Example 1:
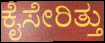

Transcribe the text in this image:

ಕೈಸೇರಿತ್ತು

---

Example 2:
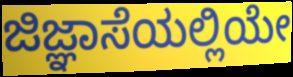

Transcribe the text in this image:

ಜಿಜ್ಞಾಸೆಯಲ್ಲಿಯೇ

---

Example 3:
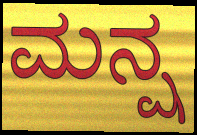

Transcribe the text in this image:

ಮನ್ಷ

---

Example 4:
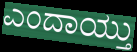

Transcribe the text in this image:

ಎಂದಾಯ್ತು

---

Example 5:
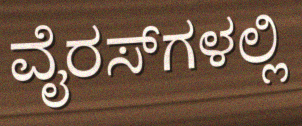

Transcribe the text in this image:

ವೈರಸ್‌ಗಳಲ್ಲಿ